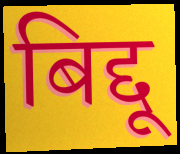
बिद्दू